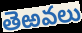
తెఱవలు